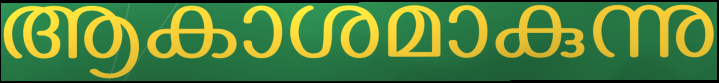
ആകാശമാകുന്നു